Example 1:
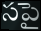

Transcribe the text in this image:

సపై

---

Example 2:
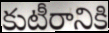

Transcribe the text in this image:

కుటీరానికి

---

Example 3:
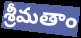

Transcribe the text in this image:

శ్రీమతాం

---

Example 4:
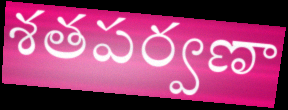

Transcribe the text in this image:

శతపర్వణా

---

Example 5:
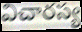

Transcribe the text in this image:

విచారస్య